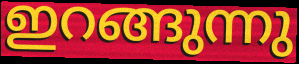
ഇറങ്ങുന്നു